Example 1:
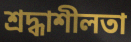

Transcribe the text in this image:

শ্রদ্ধাশীলতা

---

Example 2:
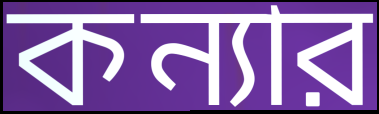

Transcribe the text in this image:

কন্যার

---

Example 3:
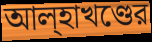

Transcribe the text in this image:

আল্হাখণ্ডের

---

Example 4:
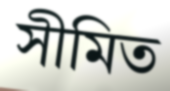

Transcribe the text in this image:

সীমিত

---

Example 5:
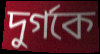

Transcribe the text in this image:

দুর্গকে